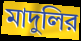
মাদুলির